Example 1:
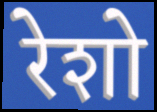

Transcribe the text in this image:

रेशो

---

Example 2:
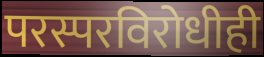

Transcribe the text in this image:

परस्परविरोधीही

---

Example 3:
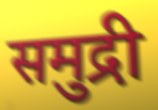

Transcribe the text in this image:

समुद्री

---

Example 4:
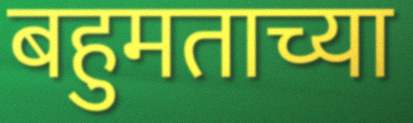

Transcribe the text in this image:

बहुमताच्या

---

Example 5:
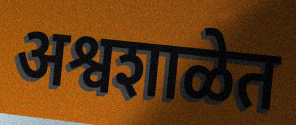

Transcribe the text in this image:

अश्वशाळेत